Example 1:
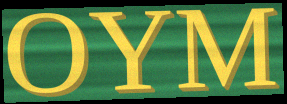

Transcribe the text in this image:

OYM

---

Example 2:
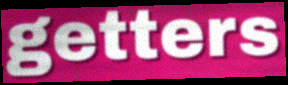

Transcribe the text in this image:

getters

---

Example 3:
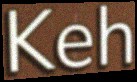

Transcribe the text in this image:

Keh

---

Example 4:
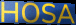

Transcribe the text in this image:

HOSA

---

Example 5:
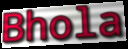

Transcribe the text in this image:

Bhola